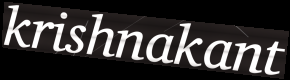
krishnakant